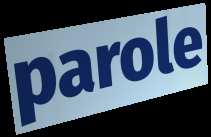
parole